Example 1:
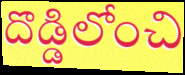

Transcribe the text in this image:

దొడ్డిలోంచి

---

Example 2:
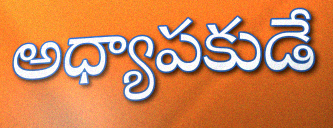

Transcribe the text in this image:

అధ్యాపకుడే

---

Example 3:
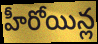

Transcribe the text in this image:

హీరోయిన్ల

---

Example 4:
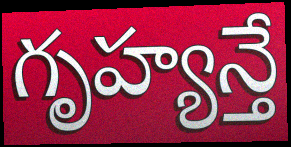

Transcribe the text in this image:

గృహ్యన్తే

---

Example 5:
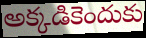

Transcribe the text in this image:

అక్కడికెందుకు